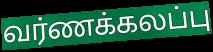
வர்ணக்கலப்பு